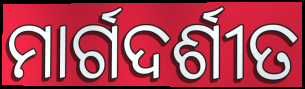
ମାର୍ଗଦର୍ଶୀତ